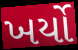
ખર્યો